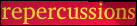
repercussions